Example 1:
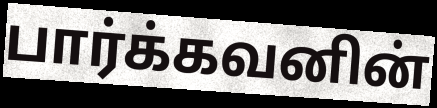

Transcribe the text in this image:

பார்க்கவனின்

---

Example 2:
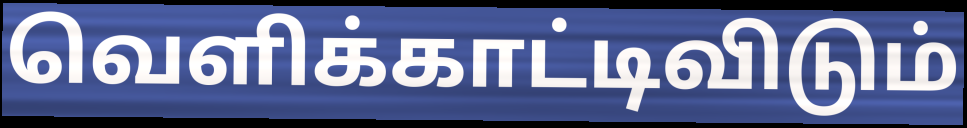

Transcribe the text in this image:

வெளிக்காட்டிவிடும்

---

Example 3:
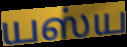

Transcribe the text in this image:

யஸ்ய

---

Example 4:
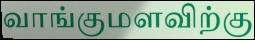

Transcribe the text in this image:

வாங்குமளவிற்கு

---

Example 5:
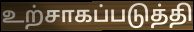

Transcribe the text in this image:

உற்சாகப்படுத்தி